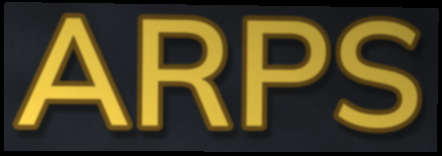
ARPS